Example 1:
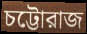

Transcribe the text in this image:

চট্টোরাজ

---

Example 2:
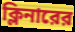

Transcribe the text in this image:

ক্লিনারের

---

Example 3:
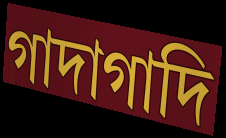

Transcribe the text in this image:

গাদাগাদি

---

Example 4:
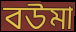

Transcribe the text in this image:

বউমা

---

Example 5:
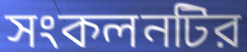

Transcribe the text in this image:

সংকলনটির